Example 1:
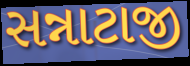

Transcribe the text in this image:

સન્નાટાજી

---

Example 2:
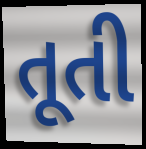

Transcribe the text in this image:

તૂતી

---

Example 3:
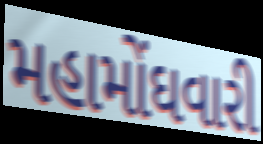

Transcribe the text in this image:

મહામોંઘવારી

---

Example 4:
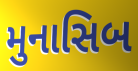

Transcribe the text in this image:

મુનાસિબ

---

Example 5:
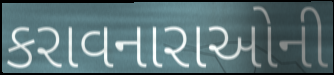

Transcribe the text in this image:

કરાવનારાઓની